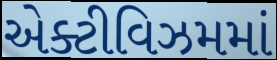
એક્ટીવિઝમમાં